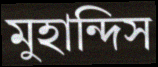
মুহান্দিস